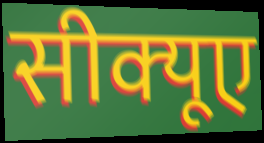
सीक्यूए